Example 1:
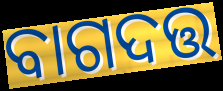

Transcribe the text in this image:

ବାଗଦତ୍ତ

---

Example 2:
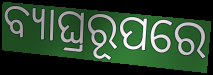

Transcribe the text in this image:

ବ୍ୟାଘ୍ରରୂପରେ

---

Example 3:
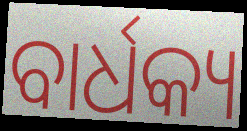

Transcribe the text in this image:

ବାର୍ଧକ୍ୟ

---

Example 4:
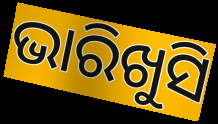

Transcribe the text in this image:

ଭାରିଖୁସି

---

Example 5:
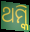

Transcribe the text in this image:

ଥମ୍କି